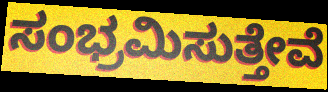
ಸಂಭ್ರಮಿಸುತ್ತೇವೆ